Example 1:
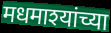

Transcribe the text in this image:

मधमाश्‍यांच्या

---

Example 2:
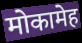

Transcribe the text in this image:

मोकामेह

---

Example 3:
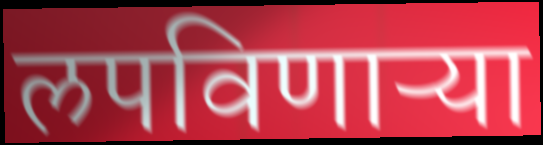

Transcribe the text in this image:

लपविणाऱ्या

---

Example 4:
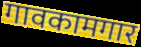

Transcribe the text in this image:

गावकामगार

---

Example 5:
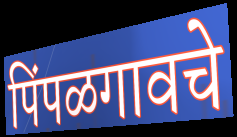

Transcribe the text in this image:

पिंपळगावचे